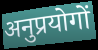
अनुप्रयोगों